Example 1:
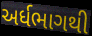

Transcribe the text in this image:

અર્ધભાગથી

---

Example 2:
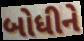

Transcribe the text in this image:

બોધીને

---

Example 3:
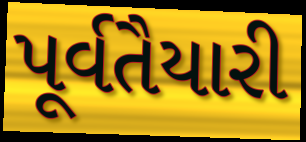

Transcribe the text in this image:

પૂર્વતૈયારી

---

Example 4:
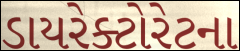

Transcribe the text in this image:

ડાયરેક્ટોરેટના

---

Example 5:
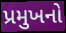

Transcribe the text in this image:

પ્રમુખનો